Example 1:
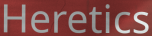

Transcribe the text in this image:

Heretics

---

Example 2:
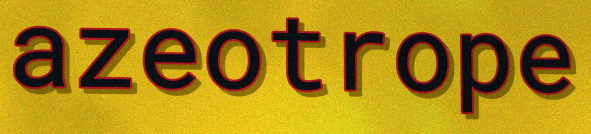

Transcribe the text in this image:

azeotrope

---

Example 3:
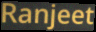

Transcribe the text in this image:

Ranjeet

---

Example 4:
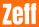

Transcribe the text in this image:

Zeff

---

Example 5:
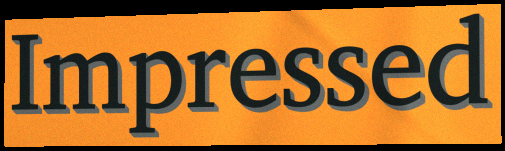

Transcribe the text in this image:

Impressed